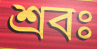
শ্রবঃ